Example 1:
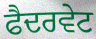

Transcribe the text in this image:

ਫੈਦਰਵੇਟ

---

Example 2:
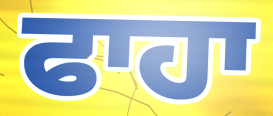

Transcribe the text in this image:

ਫਾਹਾ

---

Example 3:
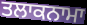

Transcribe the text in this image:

ਤਲਾਕਨਾਮਾ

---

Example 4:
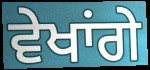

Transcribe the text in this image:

ਵੇਖਾਂਗੇ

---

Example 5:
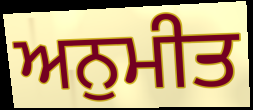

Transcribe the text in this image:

ਅਨੁਮੀਤ